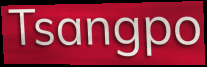
Tsangpo